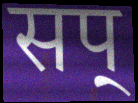
सप्